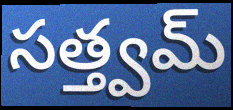
సత్త్వమ్